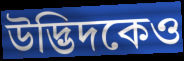
উদ্ভিদকেও